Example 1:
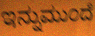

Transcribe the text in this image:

ಇನ್ನುಮುಂದೆ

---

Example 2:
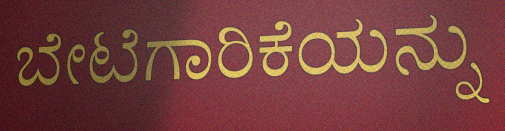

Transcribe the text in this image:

ಬೇಟೆಗಾರಿಕೆಯನ್ನು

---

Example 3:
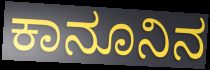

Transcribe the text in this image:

ಕಾನೂನಿನ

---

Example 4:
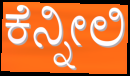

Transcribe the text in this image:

ಕೆನ್ನೀಲಿ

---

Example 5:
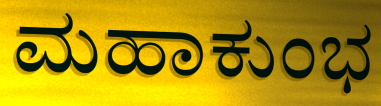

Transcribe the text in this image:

ಮಹಾಕುಂಭ